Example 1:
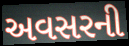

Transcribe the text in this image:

અવસરની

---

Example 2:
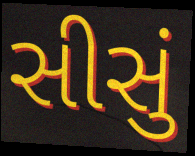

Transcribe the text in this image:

સીસું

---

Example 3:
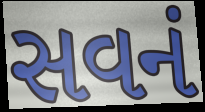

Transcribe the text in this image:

સવનં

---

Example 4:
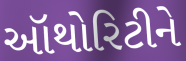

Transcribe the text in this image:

ઑથોરિટીને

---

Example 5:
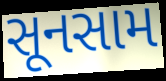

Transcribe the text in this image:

સૂનસામ